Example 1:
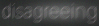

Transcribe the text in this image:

disagreeing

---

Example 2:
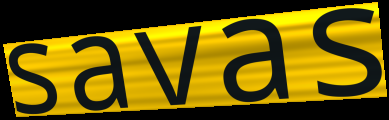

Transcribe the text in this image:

savas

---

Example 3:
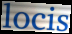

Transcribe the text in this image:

locis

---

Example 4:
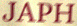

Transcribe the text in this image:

JAPH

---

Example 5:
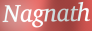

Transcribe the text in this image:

Nagnath